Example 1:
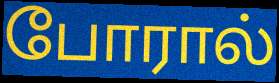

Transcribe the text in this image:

போரால்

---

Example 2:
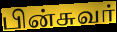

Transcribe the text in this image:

பின்சுவர்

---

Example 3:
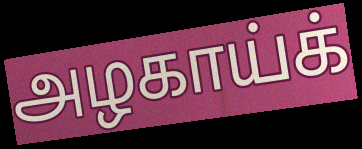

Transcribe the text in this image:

அழகாய்க்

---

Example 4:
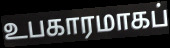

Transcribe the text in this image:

உபகாரமாகப்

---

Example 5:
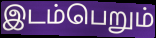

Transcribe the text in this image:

இடம்பெறும்